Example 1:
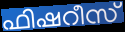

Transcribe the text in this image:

ഫിഷറീസ്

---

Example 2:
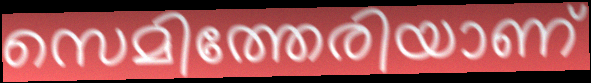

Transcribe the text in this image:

സെമിത്തേരിയാണ്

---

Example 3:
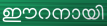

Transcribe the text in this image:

ഈറനായി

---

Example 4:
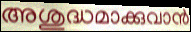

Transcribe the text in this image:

അശുദ്ധമാക്കുവാൻ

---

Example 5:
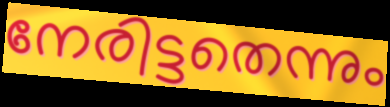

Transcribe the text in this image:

നേരിട്ടതെന്നും